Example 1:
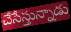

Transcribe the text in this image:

చేసేస్తున్నాడు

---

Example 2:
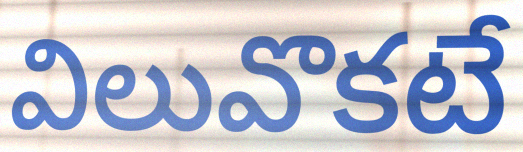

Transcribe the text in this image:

విలువొకటే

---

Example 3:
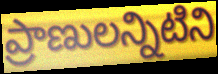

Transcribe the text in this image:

ప్రాణులన్నిటిని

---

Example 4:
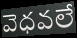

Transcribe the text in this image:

వెధవలే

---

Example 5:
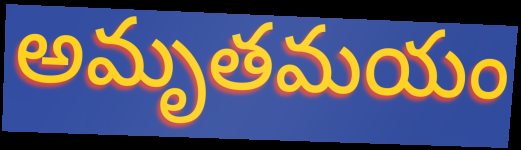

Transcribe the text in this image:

అమృతమయం